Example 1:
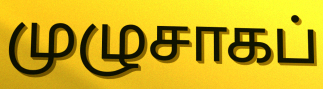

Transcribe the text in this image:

முழுசாகப்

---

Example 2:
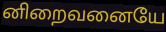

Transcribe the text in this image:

னிறைவனையே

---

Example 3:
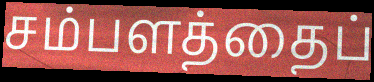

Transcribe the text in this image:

சம்பளத்தைப்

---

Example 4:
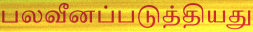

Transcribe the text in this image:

பலவீனப்படுத்தியது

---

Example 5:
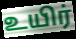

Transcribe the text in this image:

உயிர்